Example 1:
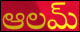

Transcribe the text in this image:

ఆలమ్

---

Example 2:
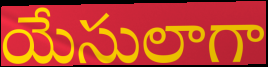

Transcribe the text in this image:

యేసులాగా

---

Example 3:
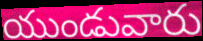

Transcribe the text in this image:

యుండువారు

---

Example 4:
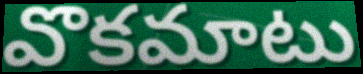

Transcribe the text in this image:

వొకమాటు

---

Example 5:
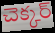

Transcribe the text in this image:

చెక్కర్